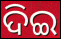
ଦିଇ